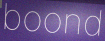
boond